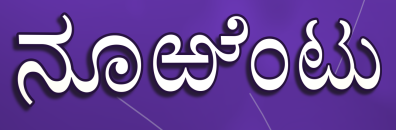
ನೂಱೆಂಟು